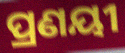
ପ୍ରଣୟୀ